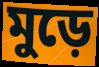
মুড়ে